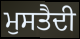
ਮੁਸਤੈਦੀ